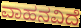
ವಾಹನವಿದೆ